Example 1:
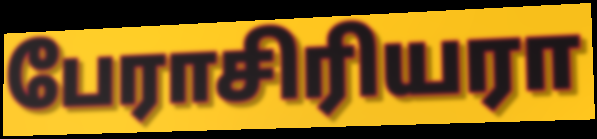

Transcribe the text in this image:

பேராசிரியரா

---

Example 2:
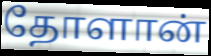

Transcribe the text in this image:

தோளான்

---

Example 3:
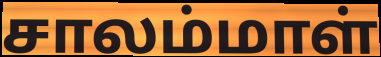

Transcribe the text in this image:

சாலம்மாள்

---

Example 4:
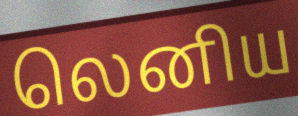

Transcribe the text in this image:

லெனிய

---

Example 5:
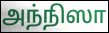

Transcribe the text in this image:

அந்நிஸா